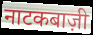
नाटकबाज़ी